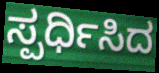
ಸ್ಪರ್ಧಿಸಿದ